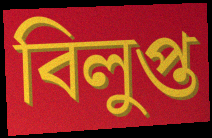
বিলুপ্ত